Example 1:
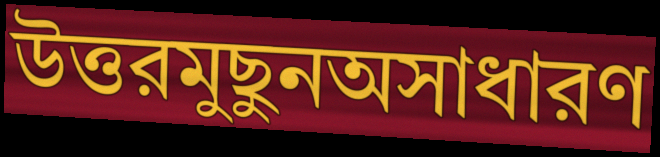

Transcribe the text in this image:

উত্তরমুছুনঅসাধারণ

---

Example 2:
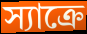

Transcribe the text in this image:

স্যাক্রে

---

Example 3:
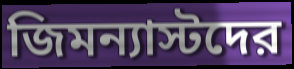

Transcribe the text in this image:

জিমন্যাস্টদের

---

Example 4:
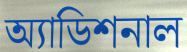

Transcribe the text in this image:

অ্যাডিশনাল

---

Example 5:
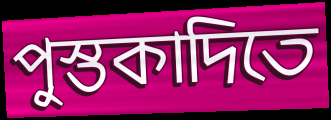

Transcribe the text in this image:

পুস্তকাদিতে